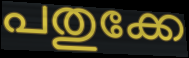
പതുക്കേ